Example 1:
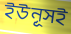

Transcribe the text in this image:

ইউনূসই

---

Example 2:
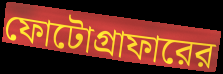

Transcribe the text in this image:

ফোটোগ্রাফারের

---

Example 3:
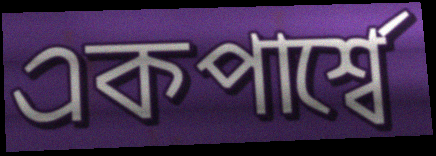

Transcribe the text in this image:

একপার্শ্বে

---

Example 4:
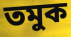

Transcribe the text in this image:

তমুক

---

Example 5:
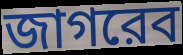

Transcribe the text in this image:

জাগরেব